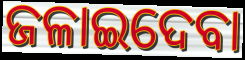
ଜଳାଇଦେବା